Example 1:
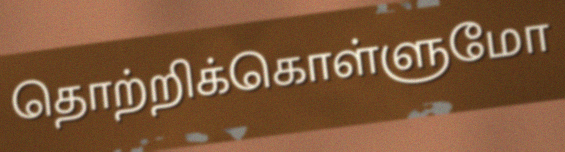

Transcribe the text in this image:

தொற்றிக்கொள்ளுமோ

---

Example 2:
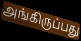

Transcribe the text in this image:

அங்கிருப்பது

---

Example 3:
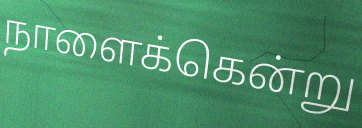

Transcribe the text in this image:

நாளைக்கென்று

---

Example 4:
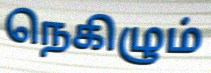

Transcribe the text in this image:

நெகிழும்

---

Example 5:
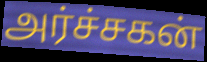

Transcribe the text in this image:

அர்ச்சகன்